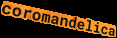
coromandelica